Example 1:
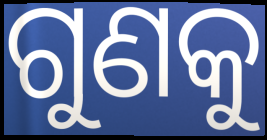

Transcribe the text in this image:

ଗୁଣକୁ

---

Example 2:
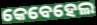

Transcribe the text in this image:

କେବେହେଲ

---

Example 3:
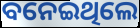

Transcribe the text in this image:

ବନେଇଥିଲେ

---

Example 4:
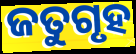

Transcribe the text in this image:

ଜତୁଗୃହ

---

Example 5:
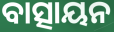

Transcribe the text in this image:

ବାତ୍ସାୟନ